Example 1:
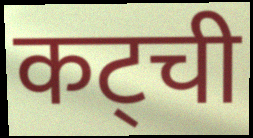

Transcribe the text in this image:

कट्ची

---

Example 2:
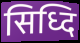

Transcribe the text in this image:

सिध्दि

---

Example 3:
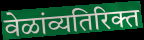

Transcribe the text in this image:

वेळांव्यतिरिक्त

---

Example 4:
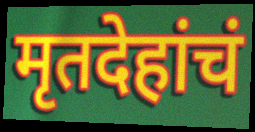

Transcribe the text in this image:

मृतदेहांचं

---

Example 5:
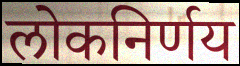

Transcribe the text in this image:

लोकनिर्णय